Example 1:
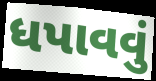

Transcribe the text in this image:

ધપાવવું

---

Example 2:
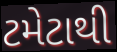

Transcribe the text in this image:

ટમેટાથી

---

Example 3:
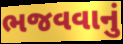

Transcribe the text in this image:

ભજવવાનું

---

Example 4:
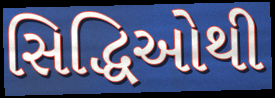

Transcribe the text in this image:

સિદ્ધિઓથી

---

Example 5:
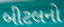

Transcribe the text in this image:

બીટલનો